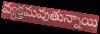
వ్యక్తమవుతున్నాయి